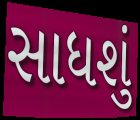
સાધશું